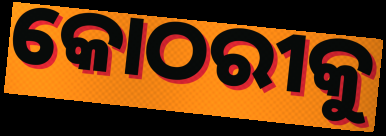
କୋଠରୀକୁ